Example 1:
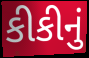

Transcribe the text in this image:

કીકીનું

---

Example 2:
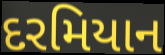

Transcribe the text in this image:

દરમિયાન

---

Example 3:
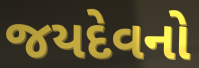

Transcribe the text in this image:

જયદેવનો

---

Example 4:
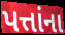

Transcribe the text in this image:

પત્તાંના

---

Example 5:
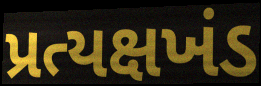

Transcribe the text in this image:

પ્રત્યક્ષખંડ